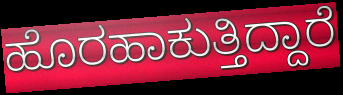
ಹೊರಹಾಕುತ್ತಿದ್ದಾರೆ